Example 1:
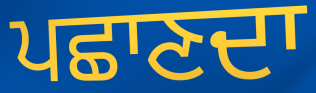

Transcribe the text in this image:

ਪਛਾਣਦਾ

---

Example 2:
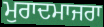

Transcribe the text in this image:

ਮੁਰਾਦਮਾਜਰਾ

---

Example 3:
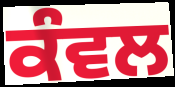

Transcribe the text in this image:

ਕੰਵਲ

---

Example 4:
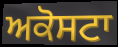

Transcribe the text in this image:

ਅਕੋਸਟਾ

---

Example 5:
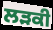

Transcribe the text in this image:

ਲੜਕੀ